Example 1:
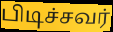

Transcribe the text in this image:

பிடிச்சவர்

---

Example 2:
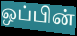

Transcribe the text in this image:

ஒப்பின்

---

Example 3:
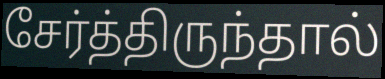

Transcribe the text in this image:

சேர்த்திருந்தால்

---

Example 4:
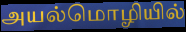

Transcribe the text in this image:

அயல்மொழியில்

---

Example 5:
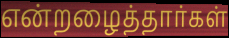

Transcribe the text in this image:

என்றழைத்தார்கள்